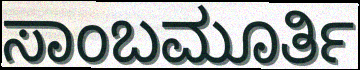
ಸಾಂಬಮೂರ್ತಿ